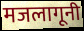
मजलागूनी